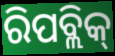
ରିପବ୍ଲିକ୍